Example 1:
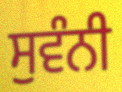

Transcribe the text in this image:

ਸੁਵੰਨੀ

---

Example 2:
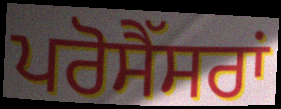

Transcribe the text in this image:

ਪਰੋਸੈੱਸਰਾਂ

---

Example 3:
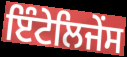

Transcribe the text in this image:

ਇੰਟੇਲਿਜੇਂਸ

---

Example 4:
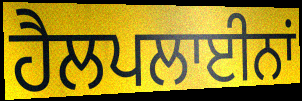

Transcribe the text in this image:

ਹੈਲਪਲਾਈਨਾਂ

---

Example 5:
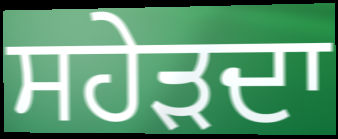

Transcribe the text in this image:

ਸਹੇੜਦਾ